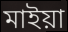
মাইয়া